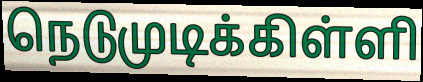
நெடுமுடிக்கிள்ளி